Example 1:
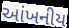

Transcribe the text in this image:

આંખનીય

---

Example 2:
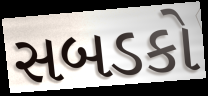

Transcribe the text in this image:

સબડકો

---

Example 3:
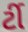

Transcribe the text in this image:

ર્ટી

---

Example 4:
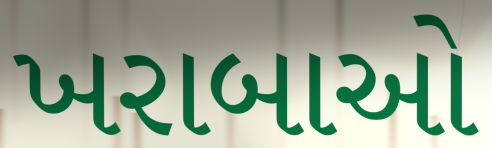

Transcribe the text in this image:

ખરાબાઓ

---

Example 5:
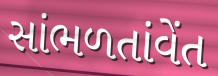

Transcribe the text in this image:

સાંભળતાંવેંત